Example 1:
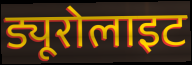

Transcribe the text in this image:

ड्यूरोलाइट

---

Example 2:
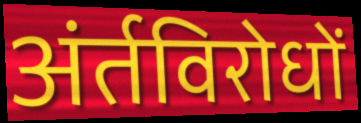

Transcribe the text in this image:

अंर्तविरोधों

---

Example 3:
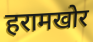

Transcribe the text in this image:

हरामखोर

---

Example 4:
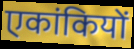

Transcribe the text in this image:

एकांकियों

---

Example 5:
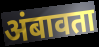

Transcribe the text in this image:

अंबावता